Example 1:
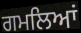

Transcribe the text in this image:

ਗਮਲਿਆਂ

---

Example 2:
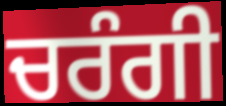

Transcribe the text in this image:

ਚਰੰਗੀ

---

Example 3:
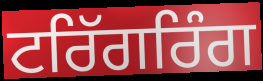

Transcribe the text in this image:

ਟਰਿੱਗਰਿੰਗ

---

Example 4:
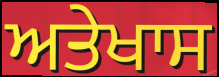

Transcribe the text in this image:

ਅਤੇਖਾਸ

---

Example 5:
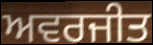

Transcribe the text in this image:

ਅਵਰਜੀਤ